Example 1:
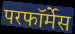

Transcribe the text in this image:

परफॉर्मेस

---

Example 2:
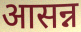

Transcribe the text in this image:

आसन्न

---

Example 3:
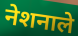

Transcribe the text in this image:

नेशनाले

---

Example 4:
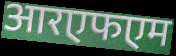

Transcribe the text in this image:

आरएफएम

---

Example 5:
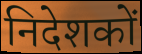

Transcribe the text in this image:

निदेशकों